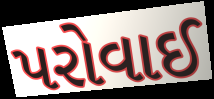
પરોવાઈ